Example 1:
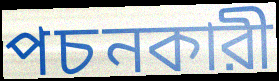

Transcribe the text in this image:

পচনকারী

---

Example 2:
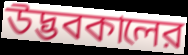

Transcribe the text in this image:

উদ্ভবকালের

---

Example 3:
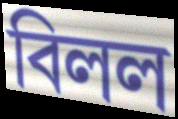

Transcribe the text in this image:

বিলল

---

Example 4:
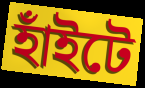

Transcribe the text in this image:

হাঁইটে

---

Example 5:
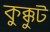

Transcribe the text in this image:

কুক্কুট